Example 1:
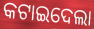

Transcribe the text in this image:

କଟାଇଦେଲା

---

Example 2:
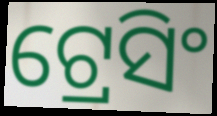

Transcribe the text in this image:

ଟ୍ରେସିଂ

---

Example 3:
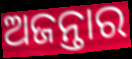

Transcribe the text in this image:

ଅଜନ୍ତାର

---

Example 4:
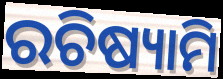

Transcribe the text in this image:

ରଚିଷ୍ୟାମି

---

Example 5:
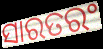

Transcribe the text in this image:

ସାରତରଂ